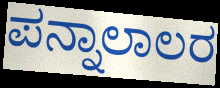
ಪನ್ನಾಲಾಲರ